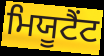
ਮਿਯੂਟੈਂਟ